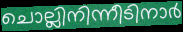
ചൊല്ലിനിന്നീടിനാർ